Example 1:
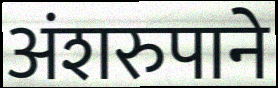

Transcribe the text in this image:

अंशरुपाने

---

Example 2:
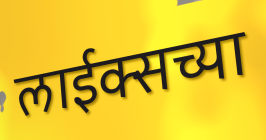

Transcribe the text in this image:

लाईक्सच्या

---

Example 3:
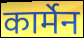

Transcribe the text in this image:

कार्मेन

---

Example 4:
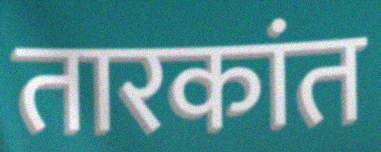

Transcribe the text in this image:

तारकांत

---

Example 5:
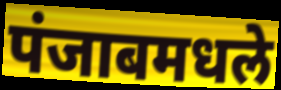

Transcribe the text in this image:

पंजाबमधले